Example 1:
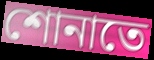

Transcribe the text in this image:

শোনাতে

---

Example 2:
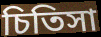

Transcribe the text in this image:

চিতিসা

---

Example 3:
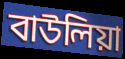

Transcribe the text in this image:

বাউলিয়া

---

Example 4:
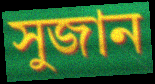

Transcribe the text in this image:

সুজান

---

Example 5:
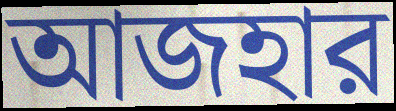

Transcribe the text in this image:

আজহার